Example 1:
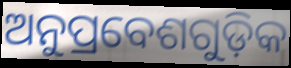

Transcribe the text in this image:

ଅନୁପ୍ରବେଶଗୁଡ଼ିକ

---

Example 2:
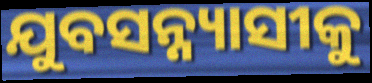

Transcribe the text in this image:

ଯୁବସନ୍ନ୍ୟାସୀକୁ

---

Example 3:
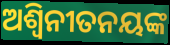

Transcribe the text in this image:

ଅଶ୍ୱିନୀତନୟଙ୍କ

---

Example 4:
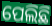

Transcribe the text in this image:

ପେଲିଛି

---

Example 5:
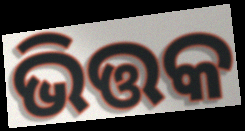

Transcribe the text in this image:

ଭିତ୍ତକ